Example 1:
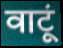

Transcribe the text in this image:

वाटूं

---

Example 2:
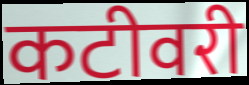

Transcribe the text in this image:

कटीवरी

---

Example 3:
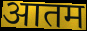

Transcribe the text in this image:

आतम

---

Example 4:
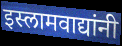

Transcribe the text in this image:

इस्लामवाद्यांनी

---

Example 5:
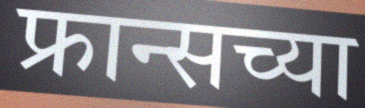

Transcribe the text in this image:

फ्रान्सच्या